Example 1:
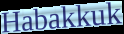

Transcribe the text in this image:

Habakkuk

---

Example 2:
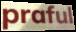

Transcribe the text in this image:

praful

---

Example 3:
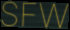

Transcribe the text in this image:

SFW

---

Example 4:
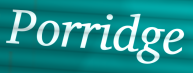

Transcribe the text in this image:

Porridge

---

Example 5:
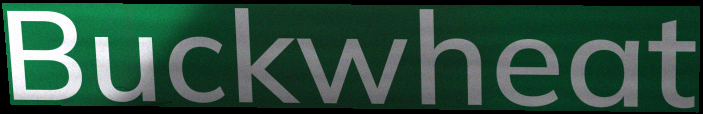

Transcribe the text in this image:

Buckwheat